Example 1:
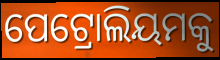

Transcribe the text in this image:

ପେଟ୍ରୋଲିୟମକୁ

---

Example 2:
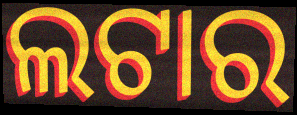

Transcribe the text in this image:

ଲଟାର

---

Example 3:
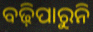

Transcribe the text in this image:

ବଢ଼ିପାରୁନି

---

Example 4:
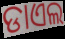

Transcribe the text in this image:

ଡାଏଲ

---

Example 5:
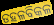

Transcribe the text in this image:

ଡହଳବିକଳ